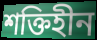
শক্তিহীন